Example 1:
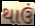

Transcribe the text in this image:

થાઉં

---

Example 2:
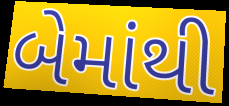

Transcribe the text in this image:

બેમાંથી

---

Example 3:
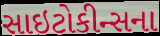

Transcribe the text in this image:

સાઇટોકીન્સના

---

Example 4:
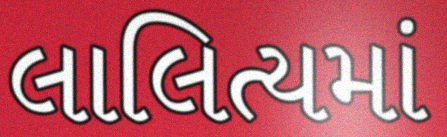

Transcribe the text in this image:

લાલિત્યમાં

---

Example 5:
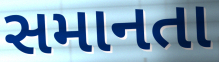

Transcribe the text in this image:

સમાનતા